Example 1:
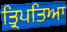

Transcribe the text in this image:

ਤ੍ਰਿਪਤਿਆ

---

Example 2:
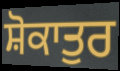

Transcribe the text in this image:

ਸ਼ੋਕਾਤੁਰ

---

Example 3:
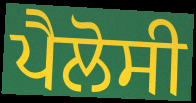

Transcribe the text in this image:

ਪੈਲੋਸੀ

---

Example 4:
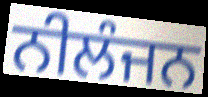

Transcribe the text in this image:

ਨੀਲੰਜਨ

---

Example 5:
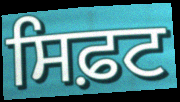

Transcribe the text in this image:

ਸਿਫ਼ਟ